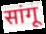
सांगू